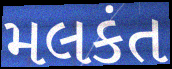
મલકંત